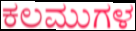
ಕಲಮುಗಳ